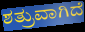
ಶತ್ರುವಾಗಿದೆ